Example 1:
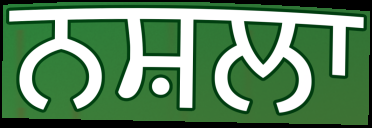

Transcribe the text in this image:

ਨਸ਼ਲਾ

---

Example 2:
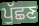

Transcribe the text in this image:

ਪੁੱਛਣ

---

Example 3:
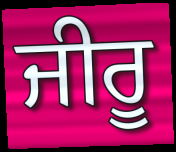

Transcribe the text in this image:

ਜੀਰੂ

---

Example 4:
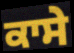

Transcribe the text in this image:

ਕਾਸੇ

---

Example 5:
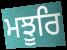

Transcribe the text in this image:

ਮਝੂਰਿ